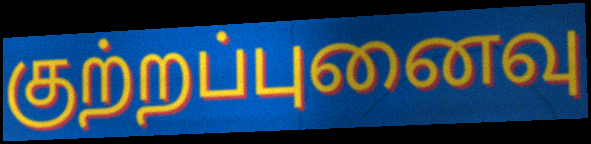
குற்றப்புனைவு